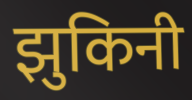
झुकिनी